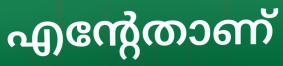
എന്റേതാണ്